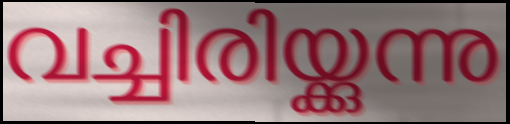
വച്ചിരിയ്ക്കുന്നു